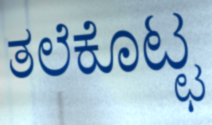
ತಲೆಕೊಟ್ಟ